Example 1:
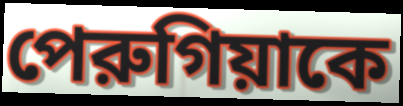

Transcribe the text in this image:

পেরুগিয়াকে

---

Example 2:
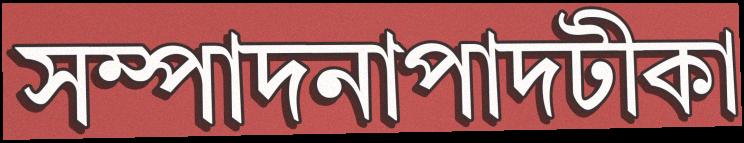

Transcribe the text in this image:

সম্পাদনাপাদটীকা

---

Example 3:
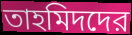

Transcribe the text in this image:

তাহমিদদের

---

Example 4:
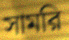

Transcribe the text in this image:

সামরি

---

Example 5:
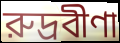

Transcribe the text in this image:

রুদ্রবীণা